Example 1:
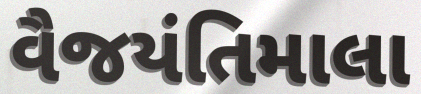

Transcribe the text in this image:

વૈજયંતિમાલા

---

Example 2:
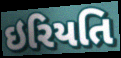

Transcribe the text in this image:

ઇરિયતિ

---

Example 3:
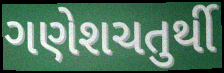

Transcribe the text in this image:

ગણેશચતુર્થી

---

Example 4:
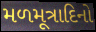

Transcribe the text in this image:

મળમૂત્રાદિનો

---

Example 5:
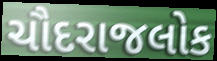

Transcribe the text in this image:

ચૌદરાજલોક